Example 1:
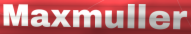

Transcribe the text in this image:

Maxmuller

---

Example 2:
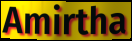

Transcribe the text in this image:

Amirtha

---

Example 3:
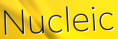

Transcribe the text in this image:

Nucleic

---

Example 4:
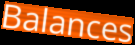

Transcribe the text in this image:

Balances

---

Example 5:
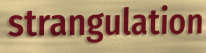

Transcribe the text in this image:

strangulation